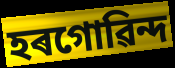
হৰগোৱিন্দ